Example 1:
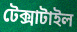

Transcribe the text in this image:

টেক্সাটাইল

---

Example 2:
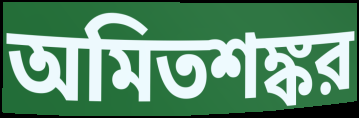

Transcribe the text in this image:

অমিতশঙ্কর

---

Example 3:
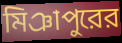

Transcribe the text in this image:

মিঞাপুরের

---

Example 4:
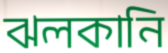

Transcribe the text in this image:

ঝলকানি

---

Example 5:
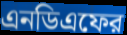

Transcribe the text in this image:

এনডিএফের